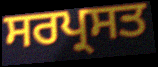
ਸਰਪ੍ਰਸਤ